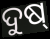
ଦୁଷ୍